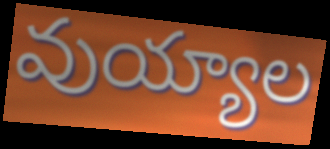
వుయ్యాల